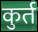
कुर्त